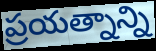
ప్రయత్నాన్ని